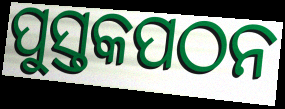
ପୁସ୍ତକପଠନ